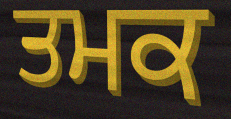
ਤਮਕ